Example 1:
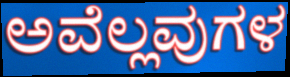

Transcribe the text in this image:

ಅವೆಲ್ಲವುಗಳ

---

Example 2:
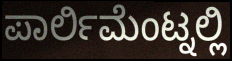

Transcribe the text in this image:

ಪಾರ್ಲಿಮೆಂಟ್ನಲ್ಲಿ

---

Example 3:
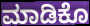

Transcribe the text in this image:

ಮಾಡಿಕೊ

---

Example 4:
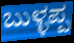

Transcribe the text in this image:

ಬುಳ್ಳಪ್ಪ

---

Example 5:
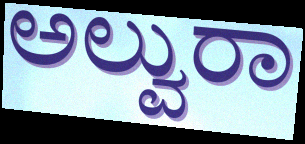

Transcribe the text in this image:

ಅಲ್ವುರಾ